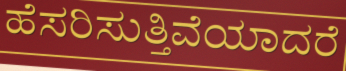
ಹೆಸರಿಸುತ್ತಿವೆಯಾದರೆ